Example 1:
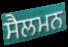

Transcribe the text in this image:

ਸੈਲਮਨ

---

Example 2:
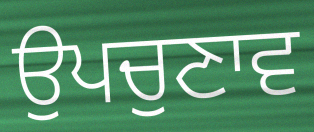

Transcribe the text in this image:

ਉਪਚੁਣਾਵ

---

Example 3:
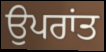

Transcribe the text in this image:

ਉਪਰਾਂਤ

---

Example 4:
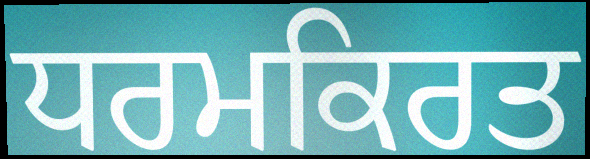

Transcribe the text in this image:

ਧਰਮਕਿਰਤ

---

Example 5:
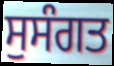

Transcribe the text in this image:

ਸੁਸੰਗਤ